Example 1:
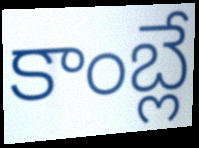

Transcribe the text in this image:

కాంబ్లే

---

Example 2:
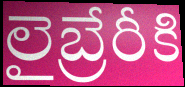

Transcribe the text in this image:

లైబ్రేరీకి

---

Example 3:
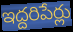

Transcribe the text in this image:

ఇద్దరిపేర్లు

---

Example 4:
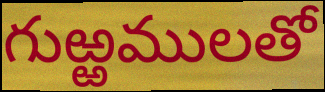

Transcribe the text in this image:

గుఱ్ఱములతో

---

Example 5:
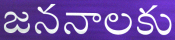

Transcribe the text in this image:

జననాలకు